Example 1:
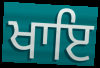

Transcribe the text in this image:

ਖਾਇ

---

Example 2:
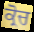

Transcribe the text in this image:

ਕ੍ਰੋਚ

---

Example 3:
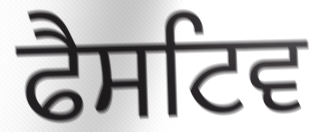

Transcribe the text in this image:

ਫੈਸਟਿਵ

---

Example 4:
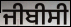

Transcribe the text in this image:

ਜੀਬੀਸੀ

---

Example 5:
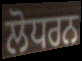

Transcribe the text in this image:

ਲੋਧਰਨ